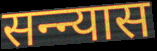
सन्न्यास